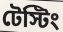
টেস্টিং